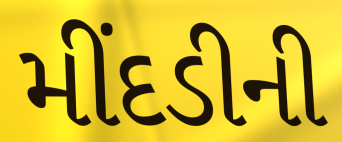
મીંદડીની